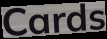
Cards